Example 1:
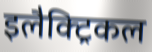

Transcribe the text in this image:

इलैक्ट्रिकल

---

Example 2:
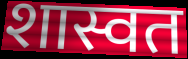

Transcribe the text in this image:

शास्वत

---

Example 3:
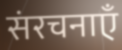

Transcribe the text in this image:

संरचनाएँ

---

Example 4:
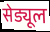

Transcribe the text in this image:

सेड्यूल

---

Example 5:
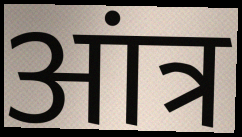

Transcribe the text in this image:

आंत्र